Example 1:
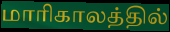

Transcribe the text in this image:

மாரிகாலத்தில்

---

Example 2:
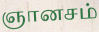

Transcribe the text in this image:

ஞானசம்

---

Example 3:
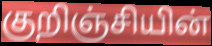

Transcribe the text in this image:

குறிஞ்சியின்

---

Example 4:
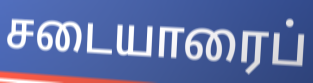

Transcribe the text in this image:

சடையாரைப்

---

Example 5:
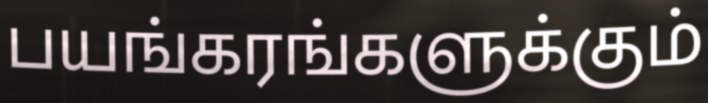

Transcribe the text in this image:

பயங்கரங்களுக்கும்